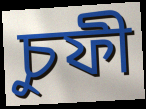
চুফী